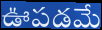
ఊపడమే